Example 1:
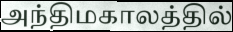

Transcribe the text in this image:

அந்திமகாலத்தில்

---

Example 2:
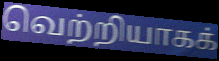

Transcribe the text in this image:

வெற்றியாகக்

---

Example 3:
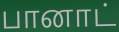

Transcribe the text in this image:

பானாட்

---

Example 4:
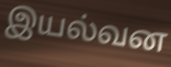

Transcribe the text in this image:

இயல்வன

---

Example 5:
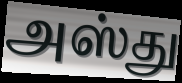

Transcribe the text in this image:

அஸ்து